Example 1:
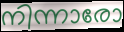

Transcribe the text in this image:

നിന്നാരോ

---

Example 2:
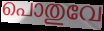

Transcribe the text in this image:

പൊതുവേ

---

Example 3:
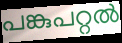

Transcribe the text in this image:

പങ്കുപറ്റൽ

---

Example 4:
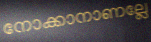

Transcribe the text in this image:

നോക്കാനാണല്ലേ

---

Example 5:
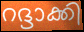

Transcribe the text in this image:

റദ്ദാക്കി